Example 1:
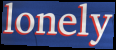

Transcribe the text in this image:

lonely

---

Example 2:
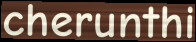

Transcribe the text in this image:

cherunthi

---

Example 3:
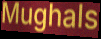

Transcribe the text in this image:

Mughals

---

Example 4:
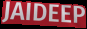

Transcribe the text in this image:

JAIDEEP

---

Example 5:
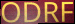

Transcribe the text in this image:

ODRF